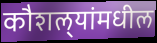
कौशल्यांमधील